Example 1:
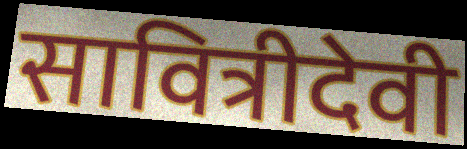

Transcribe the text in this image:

सावित्रीदेवी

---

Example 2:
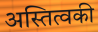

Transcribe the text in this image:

अस्तित्वकी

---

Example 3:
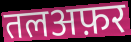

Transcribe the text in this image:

तलअफ़र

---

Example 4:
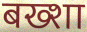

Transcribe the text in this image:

बख्शा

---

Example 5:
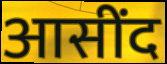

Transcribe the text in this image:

आसींद